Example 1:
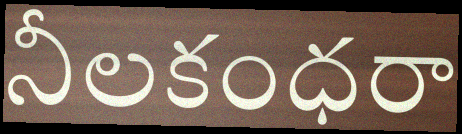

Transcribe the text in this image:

నీలకంధరా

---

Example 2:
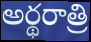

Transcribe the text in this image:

అర్థరాత్రి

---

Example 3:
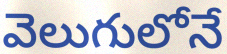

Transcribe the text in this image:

వెలుగులోనే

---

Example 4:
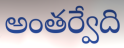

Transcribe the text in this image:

అంతర్వేది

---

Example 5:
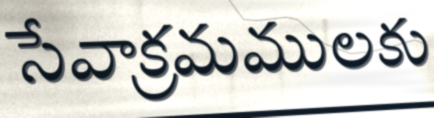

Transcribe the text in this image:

సేవాక్రమములకు